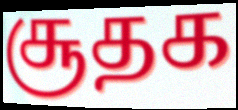
சூதக